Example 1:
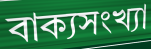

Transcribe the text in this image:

বাক্যসংখ্যা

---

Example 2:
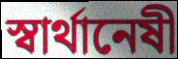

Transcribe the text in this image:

স্বার্থানেষী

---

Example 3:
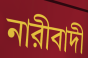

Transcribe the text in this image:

নারীবাদী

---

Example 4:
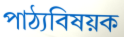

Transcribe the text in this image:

পাঠ্যবিষয়ক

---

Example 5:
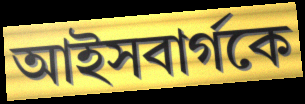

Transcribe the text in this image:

আইসবার্গকে